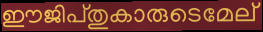
ഈജിപ്തുകാരുടെമേല്